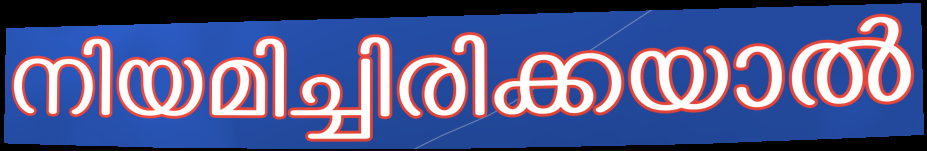
നിയമിച്ചിരിക്കയാൽ